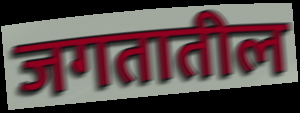
जगतातील